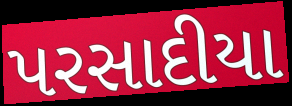
પરસાદીયા